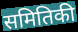
समितिकी